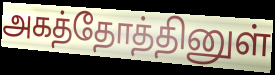
அகத்தோத்தினுள்